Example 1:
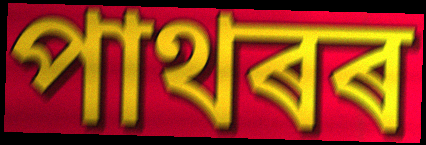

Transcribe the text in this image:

পাথৰৰ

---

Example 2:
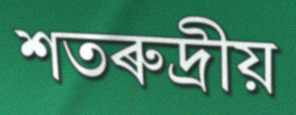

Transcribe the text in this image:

শতৰুদ্ৰীয়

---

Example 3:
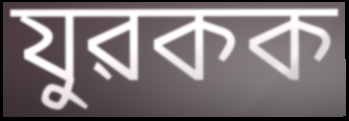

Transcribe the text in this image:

যুৱকক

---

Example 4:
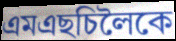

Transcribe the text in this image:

এমএছচিলৈকে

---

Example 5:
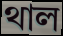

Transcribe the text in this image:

থাল